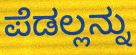
ಪೆಡಲ್ಲನ್ನು